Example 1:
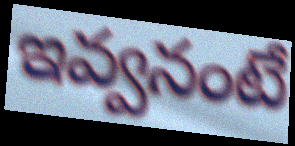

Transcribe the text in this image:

ఇవ్వనంటే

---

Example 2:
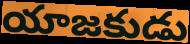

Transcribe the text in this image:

యాజకుడు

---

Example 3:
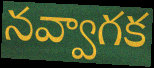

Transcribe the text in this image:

నవ్వాగక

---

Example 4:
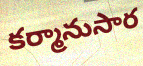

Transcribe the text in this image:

కర్మానుసార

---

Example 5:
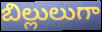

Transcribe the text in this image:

బిల్లులుగా